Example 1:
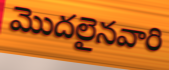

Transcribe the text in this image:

మొదలైనవారి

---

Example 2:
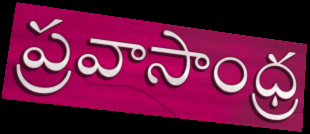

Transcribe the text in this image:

ప్రవాసాంధ్ర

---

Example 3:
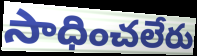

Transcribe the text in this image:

సాధించలేరు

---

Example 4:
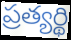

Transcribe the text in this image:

ప్రత్యర్థి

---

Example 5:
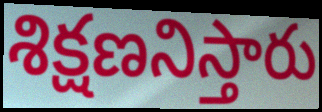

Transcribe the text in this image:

శిక్షణనిస్తారు